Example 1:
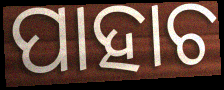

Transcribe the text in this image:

ପାହାଚ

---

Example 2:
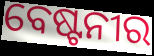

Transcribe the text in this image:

ବେଷ୍ଟନୀର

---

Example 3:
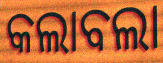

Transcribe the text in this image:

କଲାବଲା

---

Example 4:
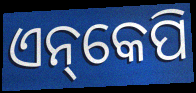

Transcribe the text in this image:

ଏନ୍‌କେପି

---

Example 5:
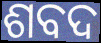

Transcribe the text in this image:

ଶବଦ